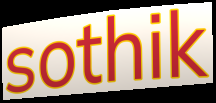
sothik